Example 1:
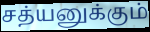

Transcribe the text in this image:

சத்யனுக்கும்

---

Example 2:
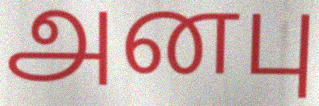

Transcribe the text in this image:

அனபு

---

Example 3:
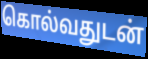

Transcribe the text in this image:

கொல்வதுடன்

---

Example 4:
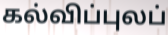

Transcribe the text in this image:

கல்விப்புலப்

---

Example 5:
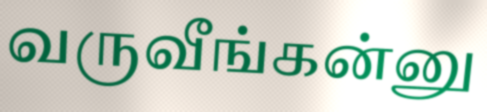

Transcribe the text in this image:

வருவீங்கன்னு